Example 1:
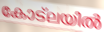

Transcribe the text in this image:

കോട്ലയിൽ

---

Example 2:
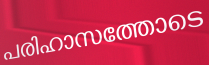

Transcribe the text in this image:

പരിഹാസത്തോടെ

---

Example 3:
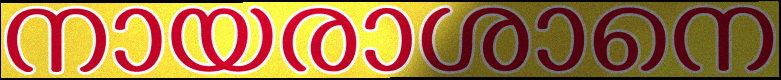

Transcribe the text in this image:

നായരാശാനെ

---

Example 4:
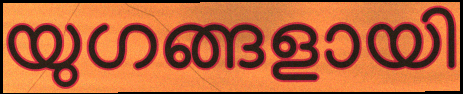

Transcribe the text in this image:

യുഗങ്ങളായി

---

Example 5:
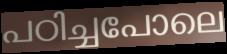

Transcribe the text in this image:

പഠിച്ചപോലെ